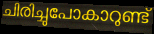
ചിരിച്ചുപോകാറുണ്ട്